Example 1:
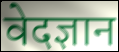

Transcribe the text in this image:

वेदज्ञान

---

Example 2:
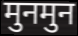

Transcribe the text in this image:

मुनमुन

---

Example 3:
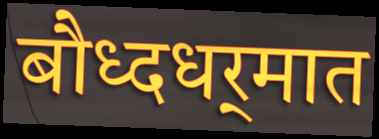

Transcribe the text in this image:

बौध्दधर्मात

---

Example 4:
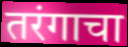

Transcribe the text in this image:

तरंगाचा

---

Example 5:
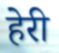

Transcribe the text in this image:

हेरी